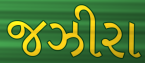
જઝીરા